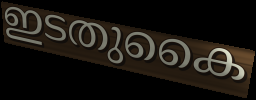
ഇടതുകൈ